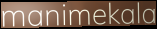
manimekala